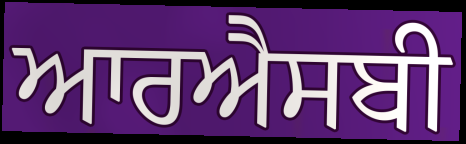
ਆਰਐਸਬੀ